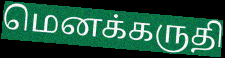
மெனக்கருதி